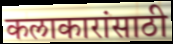
कलाकारांसाठी